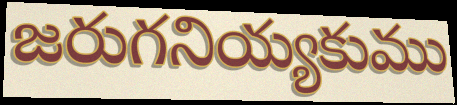
జరుగనియ్యకుము